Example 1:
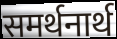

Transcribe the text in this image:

समर्थनार्थ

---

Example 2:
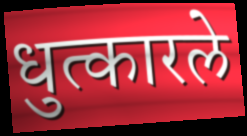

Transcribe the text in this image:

धुत्कारले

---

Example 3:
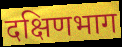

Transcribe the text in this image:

दक्षिणभाग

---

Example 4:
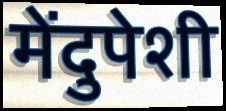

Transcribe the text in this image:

मेंदुपेशी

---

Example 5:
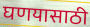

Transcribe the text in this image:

घणयासाठी